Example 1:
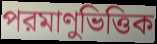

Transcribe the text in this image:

পরমাণুভিত্তিক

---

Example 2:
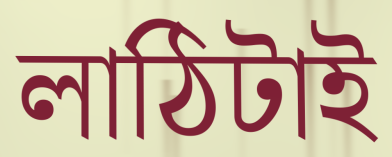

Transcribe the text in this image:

লাঠিটাই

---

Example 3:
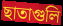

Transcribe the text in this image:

ছাতাগুলি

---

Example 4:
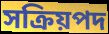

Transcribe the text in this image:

সক্রিয়পদ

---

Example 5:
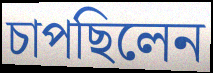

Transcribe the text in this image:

চাপছিলেন